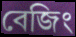
বেজিং